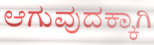
ಆಗುವುದಕ್ಕಾಗಿ